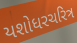
યશોધરચરિત્ર